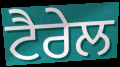
ਟੈਰੇਲ